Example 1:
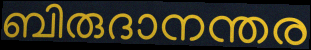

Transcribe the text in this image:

ബിരുദാനന്തര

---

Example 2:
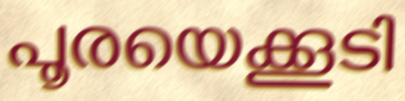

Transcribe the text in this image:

പൂരയെക്കൂടി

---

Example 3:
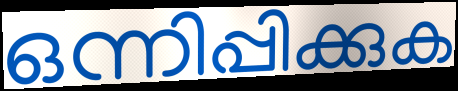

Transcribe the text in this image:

ഒന്നിപ്പിക്കുക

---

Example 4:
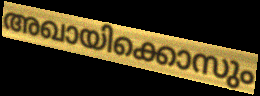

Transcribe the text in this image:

അഖായിക്കൊസും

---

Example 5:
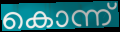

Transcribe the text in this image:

കൊന്ന്